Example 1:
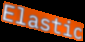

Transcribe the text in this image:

Elastic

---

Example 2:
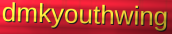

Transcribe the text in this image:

dmkyouthwing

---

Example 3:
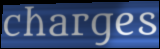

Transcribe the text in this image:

charges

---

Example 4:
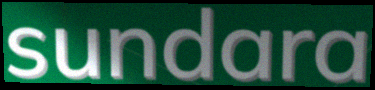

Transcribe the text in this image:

sundara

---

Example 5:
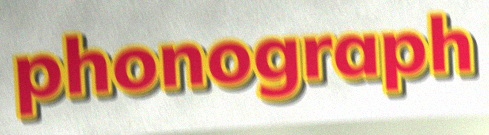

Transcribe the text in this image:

phonograph